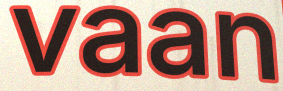
vaan